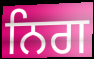
ਨਿਗ